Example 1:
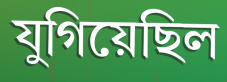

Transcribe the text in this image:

যুগিয়েছিল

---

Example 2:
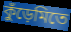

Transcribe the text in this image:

কুঁড়েমিতে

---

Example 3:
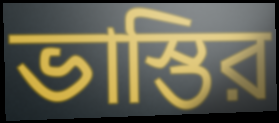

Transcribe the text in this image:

ভাস্তির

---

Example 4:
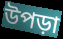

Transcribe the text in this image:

উপড়া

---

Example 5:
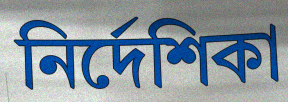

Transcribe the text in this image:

নির্দেশিকা